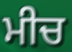
ਮੀਚ